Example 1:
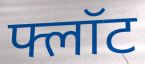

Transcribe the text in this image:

फ्लॉट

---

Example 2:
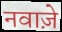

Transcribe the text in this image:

नवाज़े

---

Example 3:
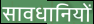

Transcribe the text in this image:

सावधानियों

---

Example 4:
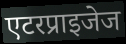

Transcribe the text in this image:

एटरप्राइजेज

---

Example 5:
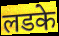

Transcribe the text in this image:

लडके